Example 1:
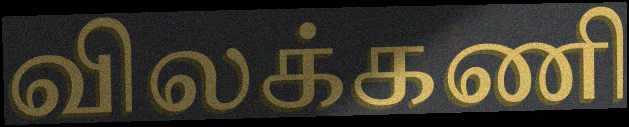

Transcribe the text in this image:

விலக்கணி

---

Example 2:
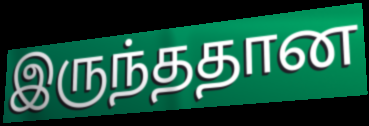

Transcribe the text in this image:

இருந்ததான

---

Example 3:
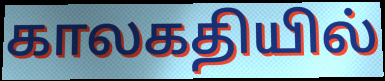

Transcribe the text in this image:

காலகதியில்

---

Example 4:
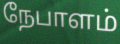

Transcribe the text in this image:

நேபாளம்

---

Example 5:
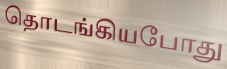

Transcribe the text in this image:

தொடங்கியபோது